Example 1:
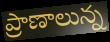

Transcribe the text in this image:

ప్రాణాలున్న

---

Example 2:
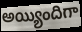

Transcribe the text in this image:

అయ్యిందిగా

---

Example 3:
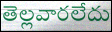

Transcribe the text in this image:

తెల్లవారలేదు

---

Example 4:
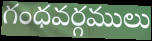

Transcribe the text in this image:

గంధవర్గములు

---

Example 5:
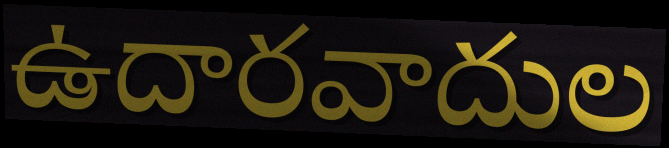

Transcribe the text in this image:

ఉదారవాదుల